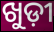
ଖୁଡ଼ୀ